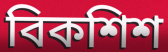
বিকশিশ